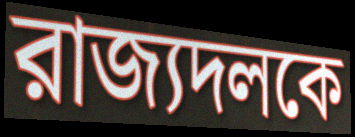
রাজ্যদলকে